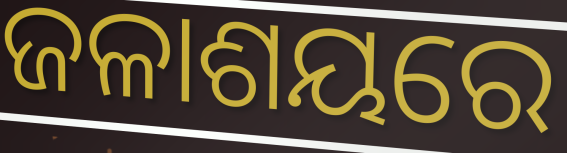
ଜଳାଶୟରେ